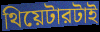
থিয়েটারটাই